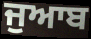
ਜੁਆਬ